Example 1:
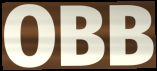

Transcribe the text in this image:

OBB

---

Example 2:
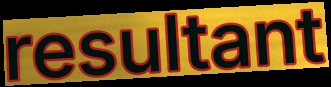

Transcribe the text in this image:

resultant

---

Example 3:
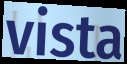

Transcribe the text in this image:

vista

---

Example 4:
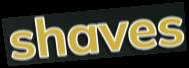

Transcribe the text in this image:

shaves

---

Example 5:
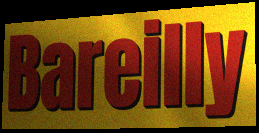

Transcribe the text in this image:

Bareilly